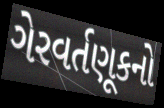
ગેરવર્તણૂકનો